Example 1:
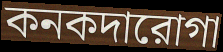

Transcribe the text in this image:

কনকদারোগা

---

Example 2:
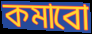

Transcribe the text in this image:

কমাবো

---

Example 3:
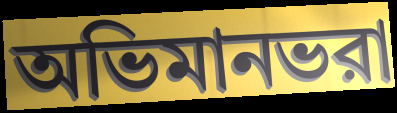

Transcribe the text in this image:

অভিমানভরা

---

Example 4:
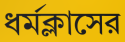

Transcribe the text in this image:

ধর্মক্লাসের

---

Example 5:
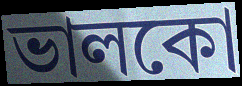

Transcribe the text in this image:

ভালকো